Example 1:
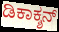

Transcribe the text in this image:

ಡಿಕಾಕ್ಶನ್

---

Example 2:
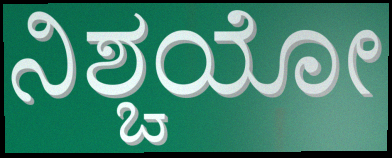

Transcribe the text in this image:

ನಿಶ್ಚಯೋ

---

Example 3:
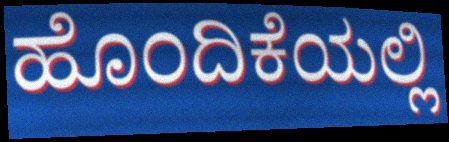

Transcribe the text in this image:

ಹೊಂದಿಕೆಯಲ್ಲಿ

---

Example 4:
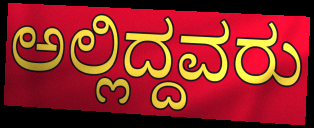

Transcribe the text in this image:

ಅಲ್ಲಿದ್ದವರು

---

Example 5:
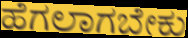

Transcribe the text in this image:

ಹೆಗಲಾಗಬೇಕು